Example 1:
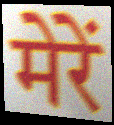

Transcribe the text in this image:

मेरें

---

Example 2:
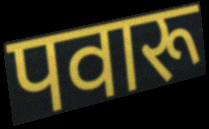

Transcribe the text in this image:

पवारू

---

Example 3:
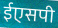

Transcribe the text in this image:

ईएसपी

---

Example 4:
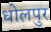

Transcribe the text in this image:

धोलपुर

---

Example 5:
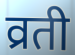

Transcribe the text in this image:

व्रती